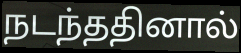
நடந்ததினால்